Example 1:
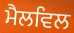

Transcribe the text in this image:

ਮੈਲਵਿਲ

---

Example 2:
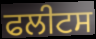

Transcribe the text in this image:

ਫਲੀਟਸ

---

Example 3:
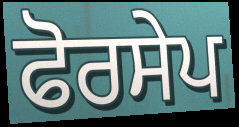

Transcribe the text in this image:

ਫੋਰਸੇਪ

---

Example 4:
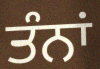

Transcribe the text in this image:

ਤੰਨਾਂ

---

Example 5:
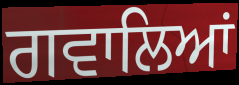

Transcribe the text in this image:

ਗਵਾਲਿਆਂ